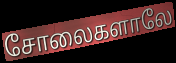
சோலைகளாலே